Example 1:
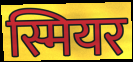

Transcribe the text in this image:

स्मियर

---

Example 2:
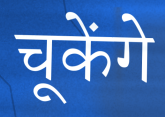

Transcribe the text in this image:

चूकेंगे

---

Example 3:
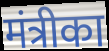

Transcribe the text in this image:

मंत्रीका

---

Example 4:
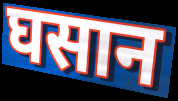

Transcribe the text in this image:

घसान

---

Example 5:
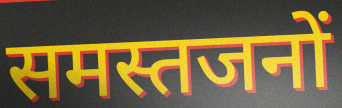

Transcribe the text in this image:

समस्तजनों